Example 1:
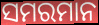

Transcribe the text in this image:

ସମରମାନ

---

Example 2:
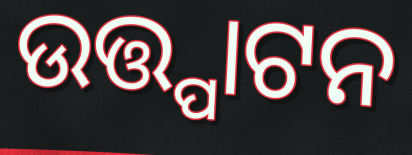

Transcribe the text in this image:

ଉତ୍ତ୍ପାଟନ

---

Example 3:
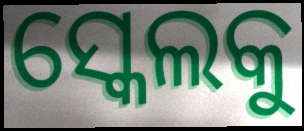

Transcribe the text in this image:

ସ୍କେଲକୁ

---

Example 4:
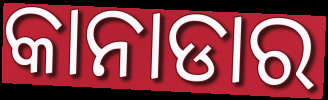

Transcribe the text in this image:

କାନାଡାର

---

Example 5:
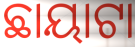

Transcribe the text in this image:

ଛାୟାଟା